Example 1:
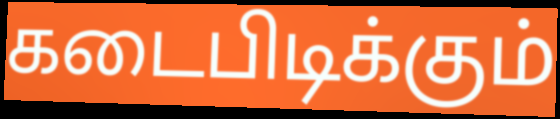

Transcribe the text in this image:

கடைபிடிக்கும்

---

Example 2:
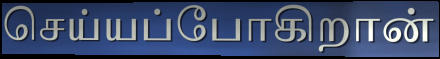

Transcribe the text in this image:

செய்யப்போகிறான்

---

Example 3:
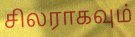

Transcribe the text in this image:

சிலராகவும்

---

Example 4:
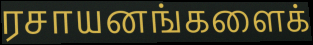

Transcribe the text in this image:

ரசாயனங்களைக்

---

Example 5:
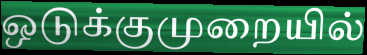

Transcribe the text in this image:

ஒடுக்குமுறையில்